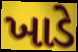
ખાડે